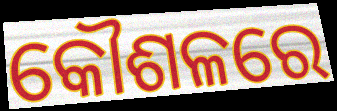
କୌଶଳରେ